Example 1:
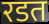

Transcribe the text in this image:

रडत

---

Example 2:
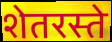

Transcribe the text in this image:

शेतरस्ते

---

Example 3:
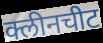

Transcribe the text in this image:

क्लीनचीट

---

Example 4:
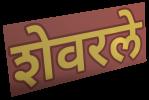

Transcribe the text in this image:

शेवरले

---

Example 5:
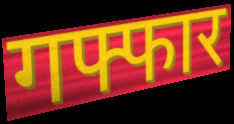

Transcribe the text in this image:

गफ्फार